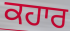
ਕਹਾਰ